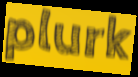
plurk